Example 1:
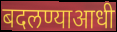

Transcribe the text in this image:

बदलण्याआधी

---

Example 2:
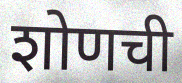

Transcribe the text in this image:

शोणची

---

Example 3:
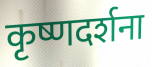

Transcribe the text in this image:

कृष्णदर्शना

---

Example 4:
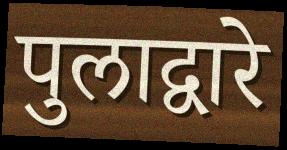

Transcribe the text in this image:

पुलाद्वारे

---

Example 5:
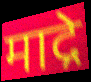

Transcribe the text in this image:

माद्रे